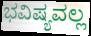
ಭವಿಷ್ಯವಲ್ಲ